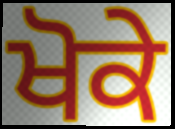
ਖੋਕੇ